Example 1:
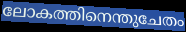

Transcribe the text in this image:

ലോകത്തിനെന്തുചേതം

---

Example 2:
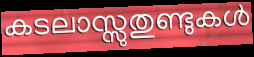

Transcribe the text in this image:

കടലാസ്സുതുണ്ടുകൾ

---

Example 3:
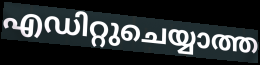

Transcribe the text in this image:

എഡിറ്റുചെയ്യാത്ത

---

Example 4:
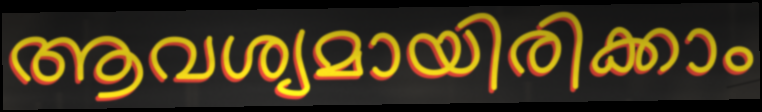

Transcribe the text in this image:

ആവശ്യമായിരിക്കാം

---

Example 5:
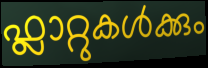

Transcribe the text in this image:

ഫ്ലാറ്റുകൾക്കും